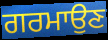
ਗਰਮਾਉਣ